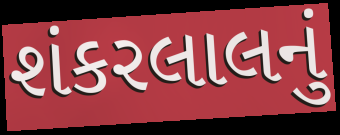
શંકરલાલનું